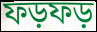
ফড়ফড়